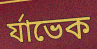
র্যাভেক